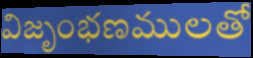
విజృంభణములతో